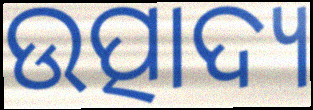
ଉତ୍ପାଦ୍ୟ